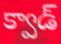
క్వాడ్